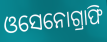
ଓସେନୋଗ୍ରାଫି